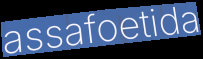
assafoetida